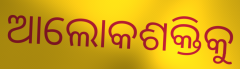
ଆଲୋକଶକ୍ତିକୁ